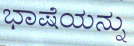
ಭಾಷೆಯನ್ನು